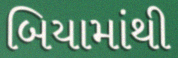
બિયામાંથી